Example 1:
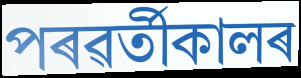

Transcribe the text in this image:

পৰৱৰ্তীকালৰ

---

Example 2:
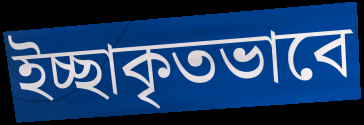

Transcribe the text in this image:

ইচ্ছাকৃতভাবে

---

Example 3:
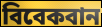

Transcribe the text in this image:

বিবেকবান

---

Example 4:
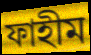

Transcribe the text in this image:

ফাহীম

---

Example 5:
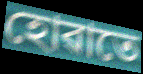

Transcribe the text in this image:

হোৱাতে